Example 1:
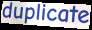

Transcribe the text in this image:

duplicate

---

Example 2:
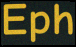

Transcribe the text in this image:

Eph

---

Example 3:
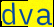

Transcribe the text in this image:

dva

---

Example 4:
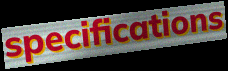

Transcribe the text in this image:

specifications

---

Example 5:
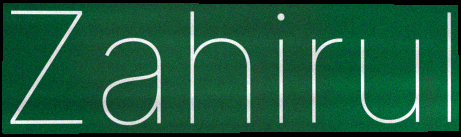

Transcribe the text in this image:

Zahirul